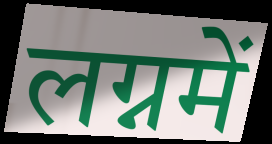
लग्नमें